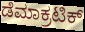
ಡೆಮಾಕ್ರಟಿಕ್